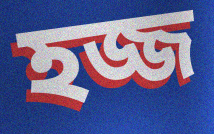
হজ্জ